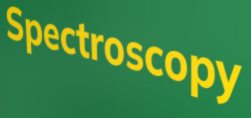
Spectroscopy